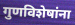
गुणविशेषांना